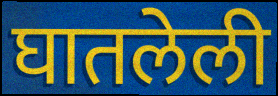
घातलेली